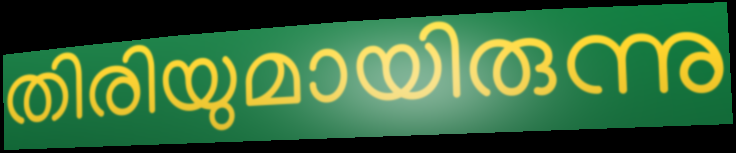
തിരിയുമായിരുന്നു